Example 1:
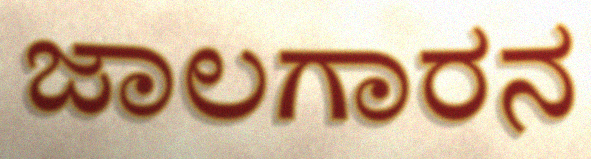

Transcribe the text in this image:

ಜಾಲಗಾರನ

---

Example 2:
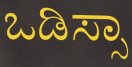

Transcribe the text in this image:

ಒಡಿಸ್ಸಾ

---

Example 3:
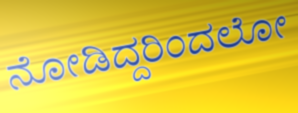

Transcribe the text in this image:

ನೋಡಿದ್ದರಿಂದಲೋ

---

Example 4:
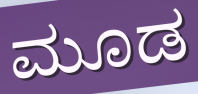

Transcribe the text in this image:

ಮೂಡ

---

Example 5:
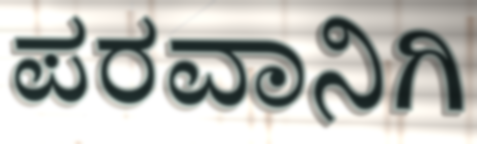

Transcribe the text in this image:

ಪರವಾನಿಗಿ